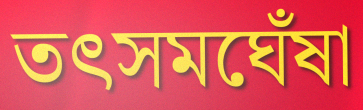
তৎসমঘেঁষা